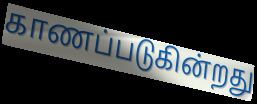
காணப்படுகின்றது